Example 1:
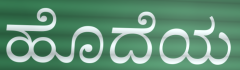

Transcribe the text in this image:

ಹೊದೆಯ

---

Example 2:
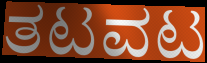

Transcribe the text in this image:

ತಟವಟ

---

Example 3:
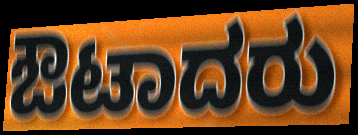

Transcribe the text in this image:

ಔಟಾದರು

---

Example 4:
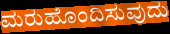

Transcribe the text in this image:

ಮರುಹೊಂದಿಸುವುದು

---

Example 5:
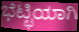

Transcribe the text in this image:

ಭೆಟ್ಟಿಯಾಗಿ